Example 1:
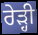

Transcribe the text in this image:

ਰੇੜ੍ਹੀ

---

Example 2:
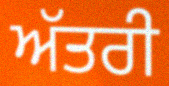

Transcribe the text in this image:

ਅੱਤਰੀ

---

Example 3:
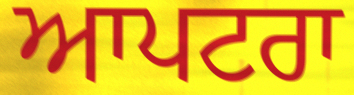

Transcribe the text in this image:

ਆਪਟਰਾ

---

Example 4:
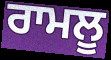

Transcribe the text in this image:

ਰਾਮਲੂ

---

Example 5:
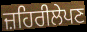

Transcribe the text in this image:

ਜ਼ਹਿਰੀਲੇਪਣ